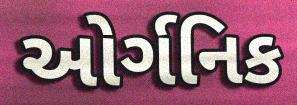
ઓર્ગનિક